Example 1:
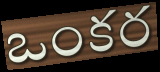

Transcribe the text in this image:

ఒంకర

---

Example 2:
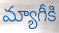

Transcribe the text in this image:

మ్యాగీకి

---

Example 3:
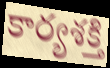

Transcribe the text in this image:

కార్యశక్తి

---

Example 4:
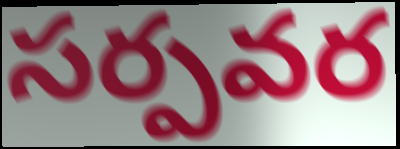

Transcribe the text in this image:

సర్పవర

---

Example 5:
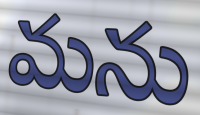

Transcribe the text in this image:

మను